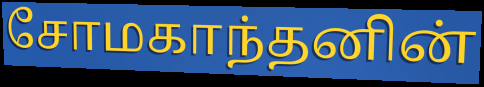
சோமகாந்தனின்